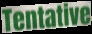
Tentative